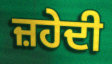
ਜ਼ਹੇਦੀ